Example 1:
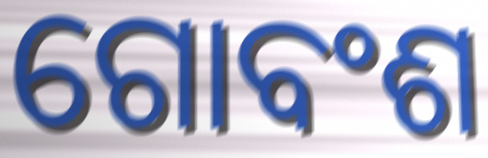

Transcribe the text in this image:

ଗୋବଂଶ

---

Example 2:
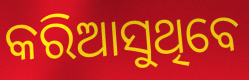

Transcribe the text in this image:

କରିଆସୁଥିବେ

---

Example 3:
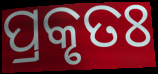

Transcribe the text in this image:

ପ୍ରକୃତଃ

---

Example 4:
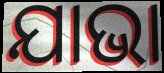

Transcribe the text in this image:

ଯାଭା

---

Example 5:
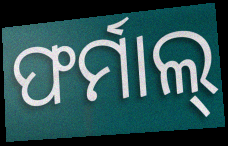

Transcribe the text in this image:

ଫର୍ମାଲ୍